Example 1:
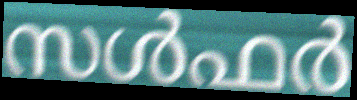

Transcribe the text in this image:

സൾഫർ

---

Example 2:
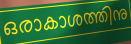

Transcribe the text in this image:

ഒരാകാശത്തിനു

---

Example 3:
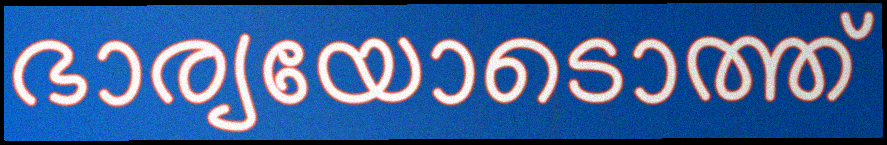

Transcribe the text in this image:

ഭാര്യയോടൊത്ത്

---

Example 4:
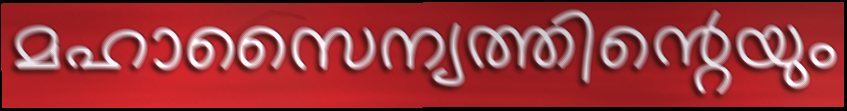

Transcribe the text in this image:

മഹാസൈന്യത്തിന്റെയും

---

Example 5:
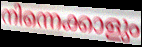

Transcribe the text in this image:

നിന്നെക്കാളും